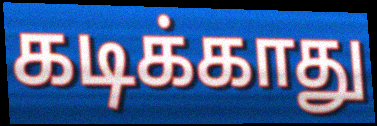
கடிக்காது